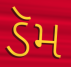
ડૅમ